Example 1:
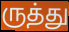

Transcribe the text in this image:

ருத்து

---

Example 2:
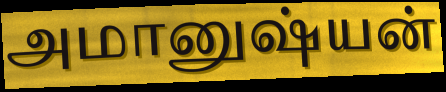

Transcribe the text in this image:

அமானுஷ்யன்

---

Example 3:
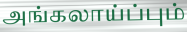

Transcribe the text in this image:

அங்கலாய்ப்பும்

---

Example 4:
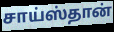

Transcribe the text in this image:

சாய்ஸ்தான்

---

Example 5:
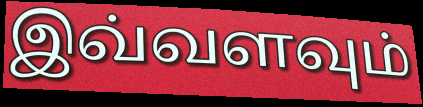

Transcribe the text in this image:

இவ்வளவும்